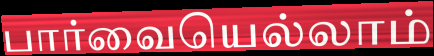
பார்வையெல்லாம்